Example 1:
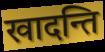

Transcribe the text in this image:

खादन्ति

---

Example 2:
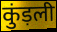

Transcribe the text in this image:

कुंड़ली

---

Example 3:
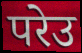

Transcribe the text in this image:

परेउ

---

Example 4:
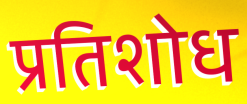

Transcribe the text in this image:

प्रतिशोध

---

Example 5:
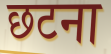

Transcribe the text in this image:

छटना